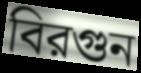
বিরগুন